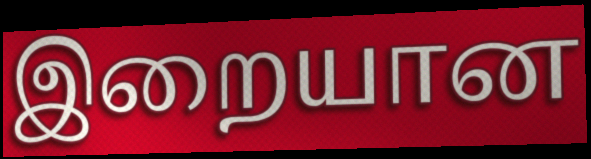
இறையான